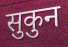
सुकुन